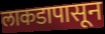
लाकडापासून